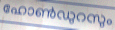
ഹോൺഡുറസും